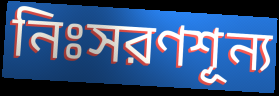
নিঃসরণশূন্য